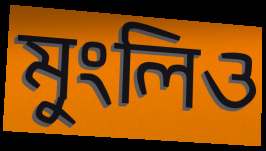
মুংলিও